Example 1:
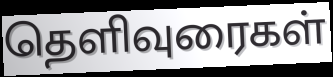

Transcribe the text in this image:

தெளிவுரைகள்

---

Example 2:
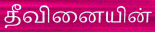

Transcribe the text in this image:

தீவினையின்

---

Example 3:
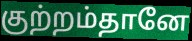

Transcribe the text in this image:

குற்றம்தானே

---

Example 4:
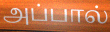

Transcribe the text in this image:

அப்பால்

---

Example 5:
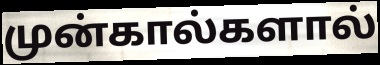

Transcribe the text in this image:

முன்கால்களால்